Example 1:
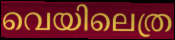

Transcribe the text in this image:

വെയിലെത്ര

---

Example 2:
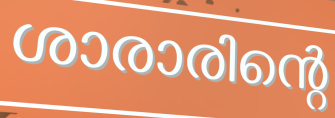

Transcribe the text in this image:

ശാരാരിന്റെ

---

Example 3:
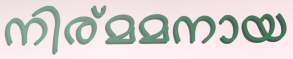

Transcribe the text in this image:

നിര്മമനായ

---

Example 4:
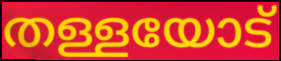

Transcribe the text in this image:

തള്ളയോട്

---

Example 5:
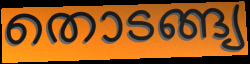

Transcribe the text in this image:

തൊടങ്ങ്യ